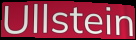
Ullstein